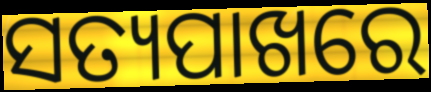
ସତ୍ୟପାଖରେ